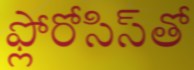
ఫ్లోరోసిస్‌తో